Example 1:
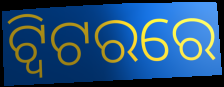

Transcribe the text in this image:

ଟ୍ବିଟରରେ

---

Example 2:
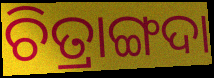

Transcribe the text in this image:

ଚିତ୍ରାଙ୍ଗଦା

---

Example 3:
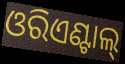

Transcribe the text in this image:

ଓରିଏଣ୍ଟାଲ୍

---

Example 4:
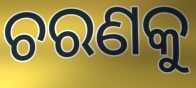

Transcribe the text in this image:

ଚରଣକୁ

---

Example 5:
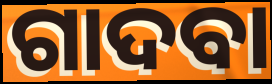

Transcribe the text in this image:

ଗାଦବା